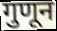
गुणून